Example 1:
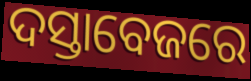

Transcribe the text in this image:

ଦସ୍ତାବେଜରେ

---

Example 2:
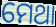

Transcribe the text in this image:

ମେଥା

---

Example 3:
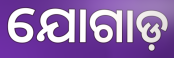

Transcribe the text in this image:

ଯୋଗାଡ଼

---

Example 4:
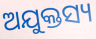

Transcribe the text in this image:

ଅଯୁକ୍ତସ୍ୟ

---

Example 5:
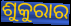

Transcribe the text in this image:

ଶୁକୁରାର